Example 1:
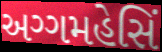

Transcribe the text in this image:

અગ્ગમહેસિં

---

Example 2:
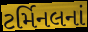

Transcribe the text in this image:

ટર્મિનલનાં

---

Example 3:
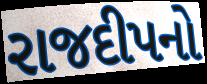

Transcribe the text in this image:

રાજદીપનો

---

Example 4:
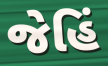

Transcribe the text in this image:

જેહિં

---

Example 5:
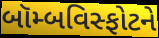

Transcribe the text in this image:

બૉમ્બવિસ્ફોટને